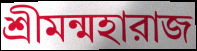
শ্রীমন্মহারাজ